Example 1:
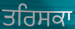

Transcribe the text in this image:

ਤਰਿਸਕਾ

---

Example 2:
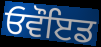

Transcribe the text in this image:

ਓਵੌਇਡ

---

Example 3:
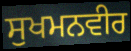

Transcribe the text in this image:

ਸੁਖਮਨਵੀਰ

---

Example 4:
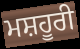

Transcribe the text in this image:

ਮਸ਼ਹੂਰੀ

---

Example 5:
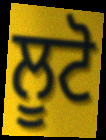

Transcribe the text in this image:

ਲੂਟੋ